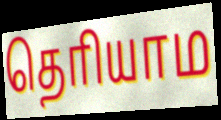
தெரியாம